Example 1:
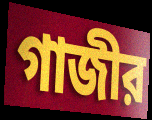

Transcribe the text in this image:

গাজীর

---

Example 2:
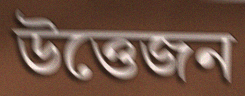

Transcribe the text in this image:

উত্তেজন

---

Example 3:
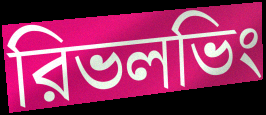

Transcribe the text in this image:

রিভলভিং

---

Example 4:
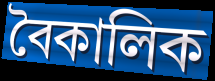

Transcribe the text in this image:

বৈকালিক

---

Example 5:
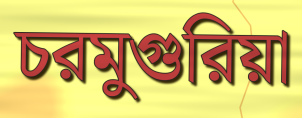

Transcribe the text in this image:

চরমুগুরিয়া